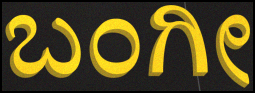
ಬಂಗೀ